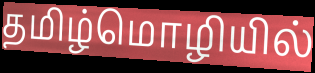
தமிழ்மொழியில்